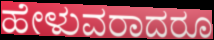
ಹೇಳುವರಾದರೂ